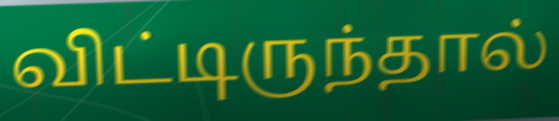
விட்டிருந்தால்